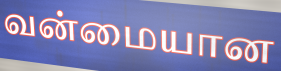
வன்மையான